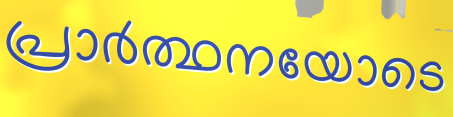
പ്രാർത്ഥനയോടെ